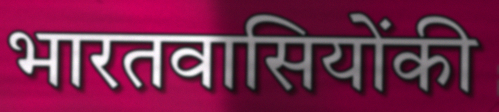
भारतवासियोंकी